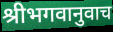
श्रीभगवानुवाच